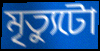
মৃত্যুটো